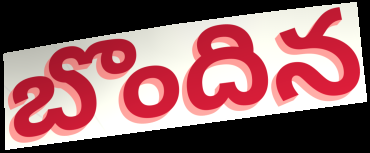
బొందిన